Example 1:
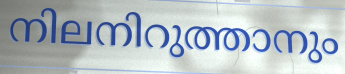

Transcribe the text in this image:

നിലനിറുത്താനും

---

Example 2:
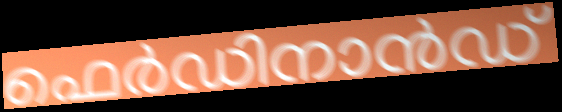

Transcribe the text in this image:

ഫെർഡിനാൻഡ്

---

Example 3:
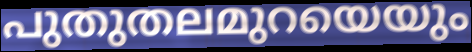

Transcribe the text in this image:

പുതുതലമുറയെയും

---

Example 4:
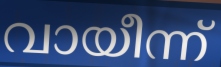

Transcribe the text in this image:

വായീന്ന്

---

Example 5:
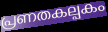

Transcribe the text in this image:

പ്രണതകല്പകം